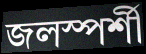
জলস্পর্শী